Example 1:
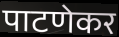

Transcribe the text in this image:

पाटणेकर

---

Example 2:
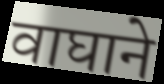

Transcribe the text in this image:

वाघाने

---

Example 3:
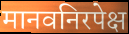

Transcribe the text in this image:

मानवनिरपेक्ष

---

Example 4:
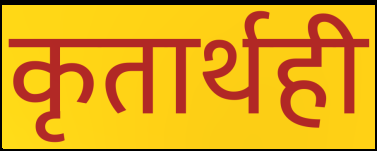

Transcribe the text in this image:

कृतार्थही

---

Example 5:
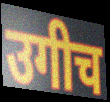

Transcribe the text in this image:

उगीच